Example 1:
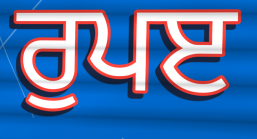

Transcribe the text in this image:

ਰੁਪੲ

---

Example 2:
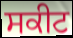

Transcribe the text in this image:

ਸਕੀਟ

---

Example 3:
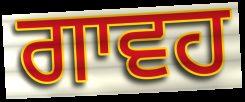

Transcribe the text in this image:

ਗਾਵਹ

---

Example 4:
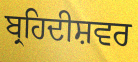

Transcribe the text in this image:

ਬ੍ਰਹਿਦੀਸ਼ਵਰ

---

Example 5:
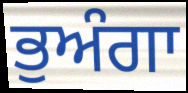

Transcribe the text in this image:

ਭੁਅੰਗਾ